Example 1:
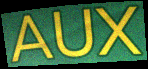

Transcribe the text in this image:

AUX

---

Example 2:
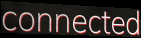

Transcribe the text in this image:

connected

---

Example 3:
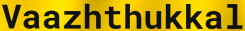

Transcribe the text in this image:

Vaazhthukkal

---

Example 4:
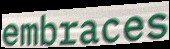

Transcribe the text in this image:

embraces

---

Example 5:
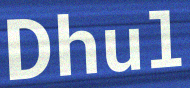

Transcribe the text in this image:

Dhul